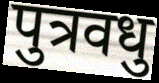
पुत्रवधु